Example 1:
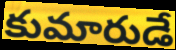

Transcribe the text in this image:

కుమారుడే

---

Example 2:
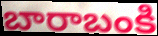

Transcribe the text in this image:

బారాబంకి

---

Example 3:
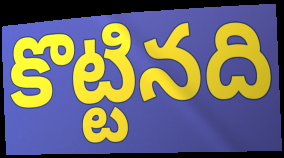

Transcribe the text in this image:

కొట్టినది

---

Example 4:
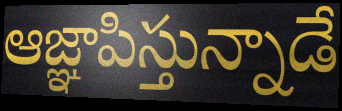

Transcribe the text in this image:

ఆజ్ఞాపిస్తున్నాడే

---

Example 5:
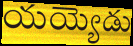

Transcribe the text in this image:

యయ్యెడు